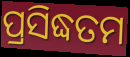
ପ୍ରସିଦ୍ଧତମ